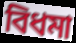
বিধমা